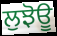
ਲੁਝੋਊ